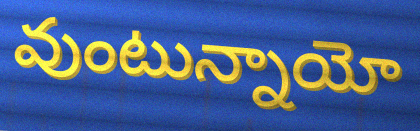
వుంటున్నాయో